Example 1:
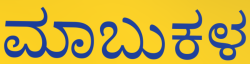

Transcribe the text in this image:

ಮಾಬುಕಳ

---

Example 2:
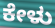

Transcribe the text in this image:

ಕೇಳು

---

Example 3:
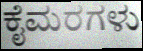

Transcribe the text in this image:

ಕೈಮರಗಳು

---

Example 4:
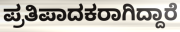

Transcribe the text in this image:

ಪ್ರತಿಪಾದಕರಾಗಿದ್ದಾರೆ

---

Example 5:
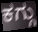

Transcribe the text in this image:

ಕಗ್ಗು